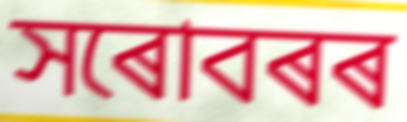
সৰোবৰৰ